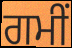
ਗਮੀਂ